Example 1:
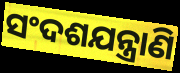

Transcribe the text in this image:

ସଂଦଶଯନ୍ତ୍ରାଣି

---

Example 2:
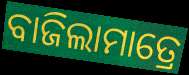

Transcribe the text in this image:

ବାଜିଲାମାତ୍ରେ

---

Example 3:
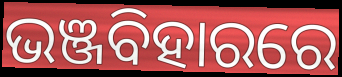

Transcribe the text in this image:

ଭଞ୍ଜବିହାରରେ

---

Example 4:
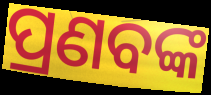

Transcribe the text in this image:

ପ୍ରଣବଙ୍କ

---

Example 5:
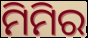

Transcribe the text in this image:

ମିମିର